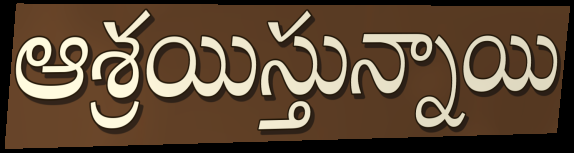
ఆశ్రయిస్తున్నాయి